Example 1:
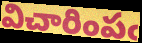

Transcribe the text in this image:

విచారింపఁ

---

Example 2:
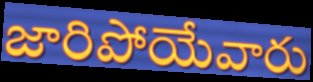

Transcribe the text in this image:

జారిపోయేవారు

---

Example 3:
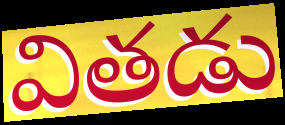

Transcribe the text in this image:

వితడు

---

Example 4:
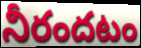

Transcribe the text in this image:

నీరందటం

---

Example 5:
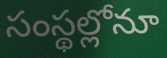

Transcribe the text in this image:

సంస్థల్లోనూ